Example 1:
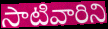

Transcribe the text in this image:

సాటివారిని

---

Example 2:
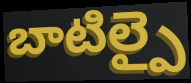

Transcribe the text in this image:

బాటిల్పై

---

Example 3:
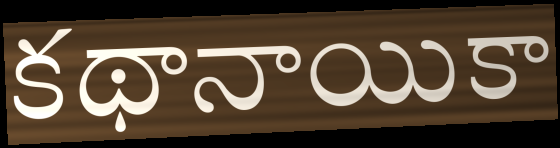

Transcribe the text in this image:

కథానాయికా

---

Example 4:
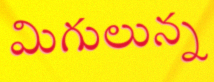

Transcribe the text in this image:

మిగులున్న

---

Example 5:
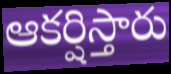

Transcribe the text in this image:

ఆకర్షిస్తారు